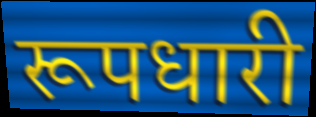
रूपधारी